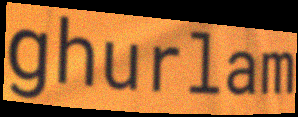
ghurlam